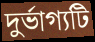
দুর্ভাগ্যটি